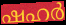
ഷഹർ